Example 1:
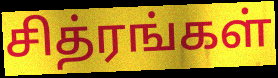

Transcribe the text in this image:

சித்ரங்கள்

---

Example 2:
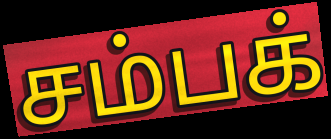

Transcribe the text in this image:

சம்பக்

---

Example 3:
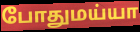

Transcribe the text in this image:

போதுமய்யா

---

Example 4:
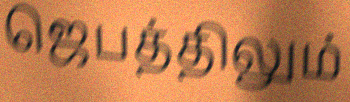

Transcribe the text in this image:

ஜெபத்திலும்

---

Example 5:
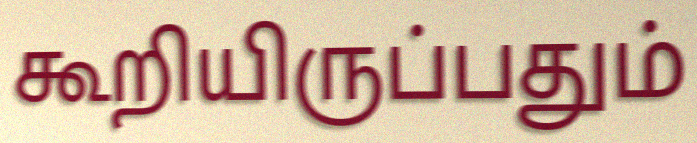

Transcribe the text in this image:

கூறியிருப்பதும்